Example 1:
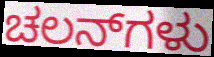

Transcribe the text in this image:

ಚಲನ್‌ಗಳು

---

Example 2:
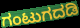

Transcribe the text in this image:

ಗಂಟುಗದಡಿ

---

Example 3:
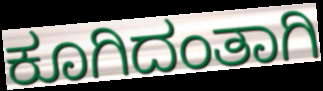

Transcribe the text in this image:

ಕೂಗಿದಂತಾಗಿ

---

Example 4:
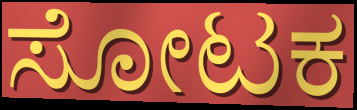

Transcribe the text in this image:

ಸೋಟಕ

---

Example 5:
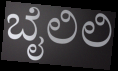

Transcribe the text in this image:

ಬೈಲಿಲಿ